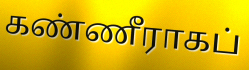
கண்ணீராகப்